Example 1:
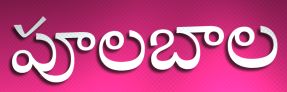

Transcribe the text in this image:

పూలబాల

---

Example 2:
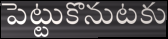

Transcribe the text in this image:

పెట్టుకొనుటకు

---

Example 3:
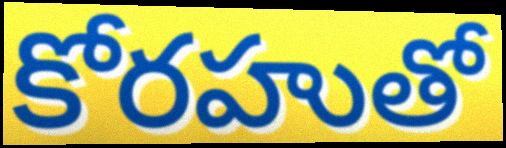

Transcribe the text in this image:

కోరహుతో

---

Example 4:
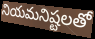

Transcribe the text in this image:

నియమనిష్టలతో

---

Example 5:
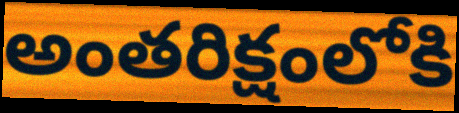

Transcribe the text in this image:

అంతరిక్షంలోకి